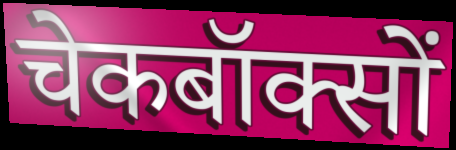
चेकबॉक्सों